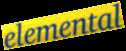
elemental